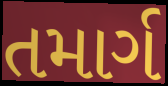
તમાર્ગ